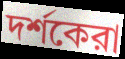
দর্শকেরা